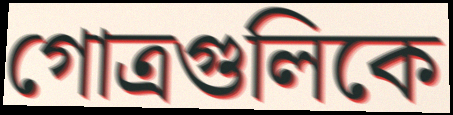
গোত্রগুলিকে